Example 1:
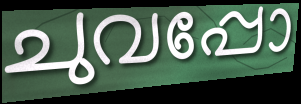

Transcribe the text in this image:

ചുവപ്പോ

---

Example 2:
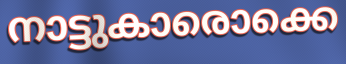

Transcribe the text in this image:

നാട്ടുകാരൊക്കെ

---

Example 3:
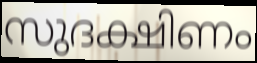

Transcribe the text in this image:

സുദക്ഷിണം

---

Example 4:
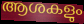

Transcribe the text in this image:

ആശകളും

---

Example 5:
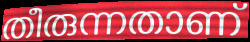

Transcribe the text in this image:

തീരുന്നതാണ്